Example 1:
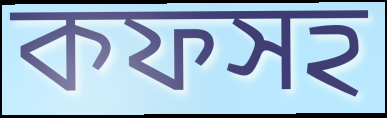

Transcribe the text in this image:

কফসহ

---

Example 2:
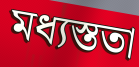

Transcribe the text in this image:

মধ্যস্ততা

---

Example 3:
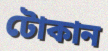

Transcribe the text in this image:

টোকান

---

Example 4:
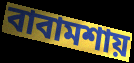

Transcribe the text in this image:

বাবামশায়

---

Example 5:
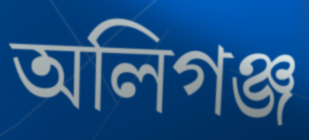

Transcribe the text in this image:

অলিগঞ্জ